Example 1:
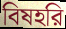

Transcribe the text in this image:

বিষহরি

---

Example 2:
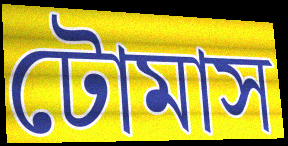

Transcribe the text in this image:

টোমাস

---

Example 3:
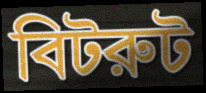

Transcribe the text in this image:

বিটরুট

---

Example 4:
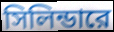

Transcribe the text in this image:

সিলিন্ডারে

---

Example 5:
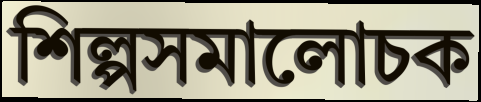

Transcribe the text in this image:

শিল্পসমালোচক